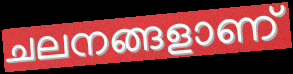
ചലനങ്ങളാണ്